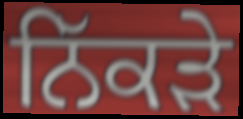
ਨਿੱਕੜੇ